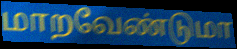
மாறவேண்டுமா